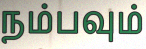
நம்பவும்